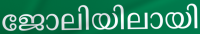
ജോലിയിലായി